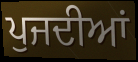
ਪੁਜਦੀਆਂ